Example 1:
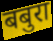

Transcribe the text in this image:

बबुरा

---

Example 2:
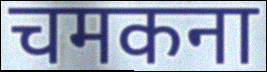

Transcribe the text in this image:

चमकना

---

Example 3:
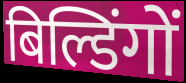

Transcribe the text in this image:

बिल्डिंगों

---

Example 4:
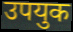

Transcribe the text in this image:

उपयुक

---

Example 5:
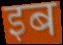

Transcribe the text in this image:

इब